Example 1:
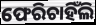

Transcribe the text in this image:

ଫେରିଚାହିଁଲି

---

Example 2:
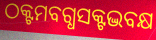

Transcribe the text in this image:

ଠକ୍ଟମବଗ୍ଧସକ୍ଟଦ୍ଭବକ୍ଷ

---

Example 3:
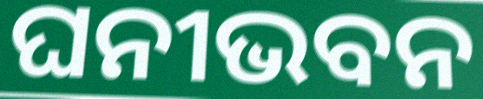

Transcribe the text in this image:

ଘନୀଭବନ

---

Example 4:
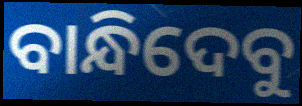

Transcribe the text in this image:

ବାନ୍ଧିଦେବୁ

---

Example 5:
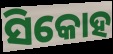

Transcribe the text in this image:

ସିକୋହ